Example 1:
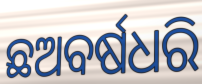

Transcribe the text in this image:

ଛଅବର୍ଷଧରି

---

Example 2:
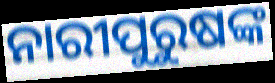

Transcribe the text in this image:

ନାରୀପୁରୁଷଙ୍କ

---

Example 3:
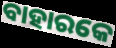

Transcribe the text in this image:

ବାହାରକେ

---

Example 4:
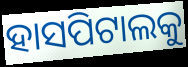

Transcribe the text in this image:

ହାସପିଟାଲକୁ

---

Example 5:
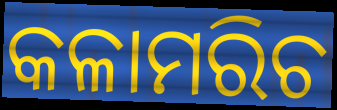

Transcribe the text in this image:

କଳାମରିଚ